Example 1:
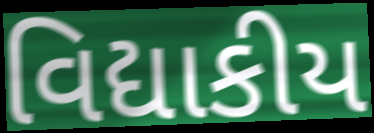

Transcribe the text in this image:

વિદ્યાકીય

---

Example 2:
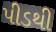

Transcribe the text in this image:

પીડથી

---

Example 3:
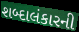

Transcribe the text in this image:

શબ્દાલંકારની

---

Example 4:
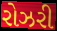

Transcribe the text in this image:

રોઝરી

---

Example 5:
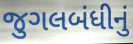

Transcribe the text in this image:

જુગલબંધીનું